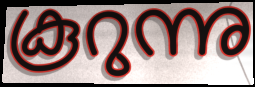
കൂറുന്നു